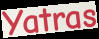
Yatras